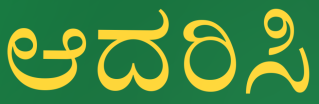
ಆದರಿಸಿ